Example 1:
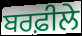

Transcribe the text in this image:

ਬਰਫ਼ੀਲੇ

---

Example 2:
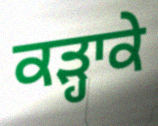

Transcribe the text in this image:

ਕੜ੍ਹਾਕੇ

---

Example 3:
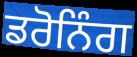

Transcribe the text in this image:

ਡਰੋਨਿੰਗ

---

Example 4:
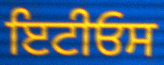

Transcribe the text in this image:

ਇਟੀਓਸ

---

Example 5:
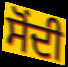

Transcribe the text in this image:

ਸੋਂਦੀ